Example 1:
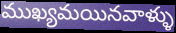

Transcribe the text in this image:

ముఖ్యమయినవాళ్ళు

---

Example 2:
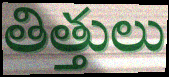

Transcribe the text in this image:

తిత్తులు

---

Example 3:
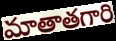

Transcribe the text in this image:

మాతాతగారి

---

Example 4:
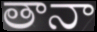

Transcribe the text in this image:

తానా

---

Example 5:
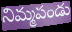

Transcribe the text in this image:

నిమ్మపండు